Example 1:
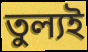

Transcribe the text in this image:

তুল্যই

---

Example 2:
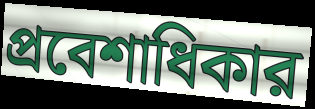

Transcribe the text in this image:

প্রবেশাধিকার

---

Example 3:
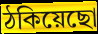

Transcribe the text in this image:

ঠকিয়েছো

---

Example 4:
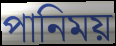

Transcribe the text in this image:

পানিময়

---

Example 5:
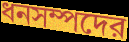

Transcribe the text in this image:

ধনসম্পদের